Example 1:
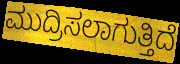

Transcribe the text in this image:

ಮುದ್ರಿಸಲಾಗುತ್ತಿದೆ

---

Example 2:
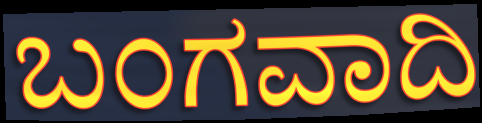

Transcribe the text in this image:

ಬಂಗವಾದಿ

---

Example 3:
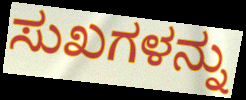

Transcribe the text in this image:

ಸುಖಗಳನ್ನು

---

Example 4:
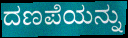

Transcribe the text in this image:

ದಣಪೆಯನ್ನು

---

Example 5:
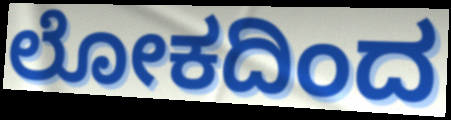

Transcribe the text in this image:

ಲೋಕದಿಂದ